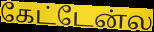
கேட்டேன்ல